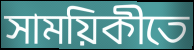
সাময়িকীতে